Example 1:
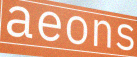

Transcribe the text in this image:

aeons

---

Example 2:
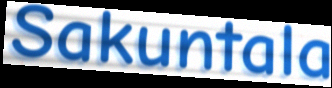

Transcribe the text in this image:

Sakuntala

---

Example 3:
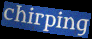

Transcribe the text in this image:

chirping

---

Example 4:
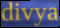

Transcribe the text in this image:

divya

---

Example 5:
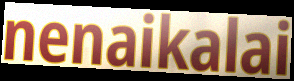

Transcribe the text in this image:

nenaikalai